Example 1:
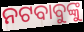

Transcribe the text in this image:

ନଟବାବୁଙ୍କୁ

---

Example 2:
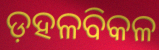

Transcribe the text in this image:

ଡ଼ହଳବିକଳ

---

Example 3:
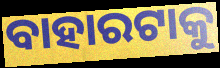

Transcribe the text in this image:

ବାହାରଟାକୁ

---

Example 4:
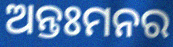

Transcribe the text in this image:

ଅନ୍ତଃମନର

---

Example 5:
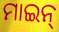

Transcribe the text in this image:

ମାଇନ୍